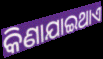
କିଣାଯାଇଥାଏ